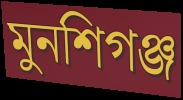
মুনশিগঞ্জ